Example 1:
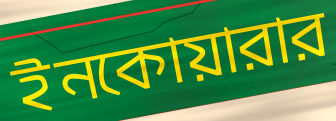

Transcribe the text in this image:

ইনকোয়ারার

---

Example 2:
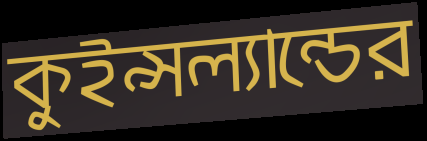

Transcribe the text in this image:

কুইন্সল্যান্ডের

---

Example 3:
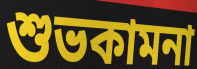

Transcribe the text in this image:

শুভকামনা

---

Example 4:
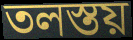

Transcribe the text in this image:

তলস্তয়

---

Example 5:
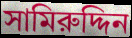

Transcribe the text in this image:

সামিরুদ্দিন